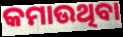
କମାଉଥିବା